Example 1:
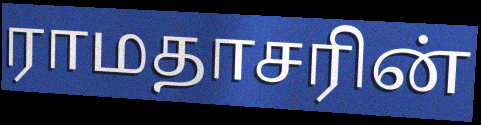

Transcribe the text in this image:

ராமதாசரின்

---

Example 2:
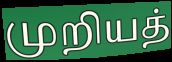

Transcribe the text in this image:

முறியத்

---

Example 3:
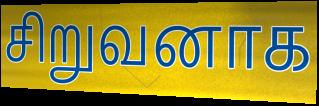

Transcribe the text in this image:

சிறுவனாக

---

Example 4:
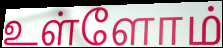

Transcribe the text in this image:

உள்ளோம்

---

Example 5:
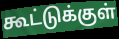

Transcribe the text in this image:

கூட்டுக்குள்